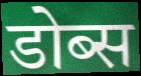
डोब्स